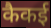
कैकई